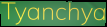
Tyanchya